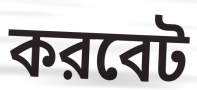
করবেট